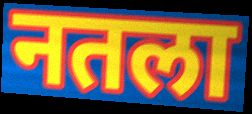
नतला